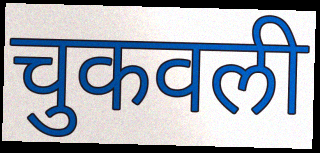
चुकवली